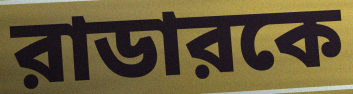
রাডারকে